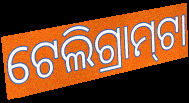
ଟେଲିଗ୍ରାମ୍‍ଟା